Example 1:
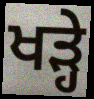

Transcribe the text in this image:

ਖਡ਼੍ਹੇ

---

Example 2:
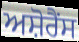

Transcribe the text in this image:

ਅਸ਼ੋਰੈਂਸ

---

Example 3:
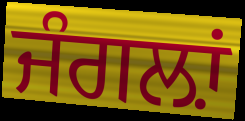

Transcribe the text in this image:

ਜੰਗਲ਼ਾਂ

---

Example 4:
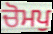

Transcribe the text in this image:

ਚੋਮਪੁ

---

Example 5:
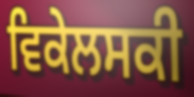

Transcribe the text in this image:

ਵਿਕੇਲਸਕੀ